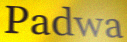
Padwa